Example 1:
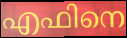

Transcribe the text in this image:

എഫിനെ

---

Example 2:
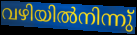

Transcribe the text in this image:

വഴിയിൽനിന്നു്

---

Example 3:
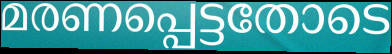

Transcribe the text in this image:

മരണപ്പെട്ടതോടെ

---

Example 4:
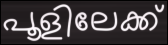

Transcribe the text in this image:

പൂളിലേക്ക്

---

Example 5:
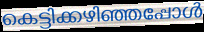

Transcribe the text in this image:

കെട്ടിക്കഴിഞ്ഞപ്പോൾ